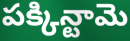
పక్కిన్టామె